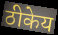
ठीकेय